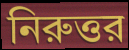
নিরুত্তর